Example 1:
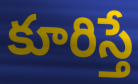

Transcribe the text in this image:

కూరిస్తే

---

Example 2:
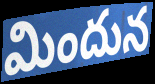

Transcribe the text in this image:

మిందున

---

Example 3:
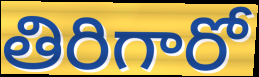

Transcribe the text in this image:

తిరిగారో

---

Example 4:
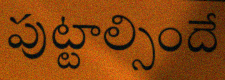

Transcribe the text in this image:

పుట్టాల్సిందే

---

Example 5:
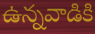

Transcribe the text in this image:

ఉన్నవాడికి